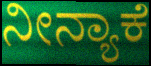
ನೀನ್ಯಾಕೆ